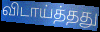
விடாய்த்தது